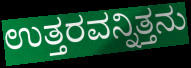
ಉತ್ತರವನ್ನಿತ್ತನು